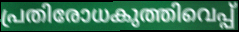
പ്രതിരോധകുത്തിവെപ്പ്